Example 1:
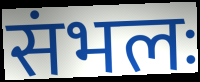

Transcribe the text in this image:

संभलः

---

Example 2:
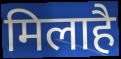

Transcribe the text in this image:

मिलाहै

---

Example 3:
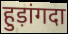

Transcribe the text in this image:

हुड़ांगदा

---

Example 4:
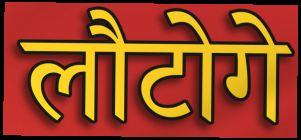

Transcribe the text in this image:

लौटोगे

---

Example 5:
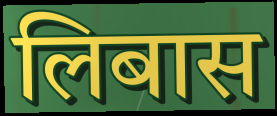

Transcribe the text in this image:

लिबास